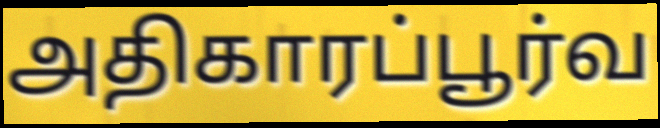
அதிகாரப்பூர்வ